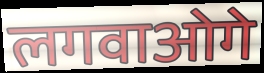
लगवाओगे